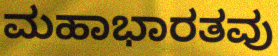
ಮಹಾಭಾರತವು